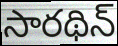
సారథిన్